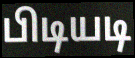
பிடியடி